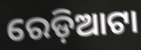
ରେଡ଼ିଆଟା